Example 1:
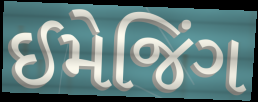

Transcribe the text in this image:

ઈમેજિંગ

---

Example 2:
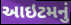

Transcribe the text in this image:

આઇટમનું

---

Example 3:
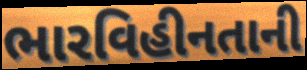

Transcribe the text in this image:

ભારવિહીનતાની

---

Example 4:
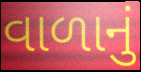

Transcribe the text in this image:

વાળાનું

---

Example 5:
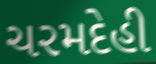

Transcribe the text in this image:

ચરમદેહી